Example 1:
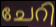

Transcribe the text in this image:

ചേറി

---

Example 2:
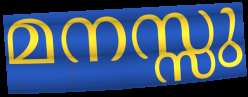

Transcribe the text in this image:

മനസ്സു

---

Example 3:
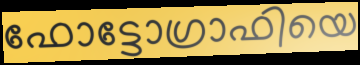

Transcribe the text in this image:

ഫോട്ടോഗ്രാഫിയെ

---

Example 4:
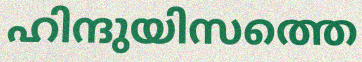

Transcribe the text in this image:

ഹിന്ദുയിസത്തെ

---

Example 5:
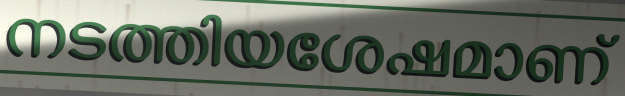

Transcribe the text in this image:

നടത്തിയശേഷമാണ്